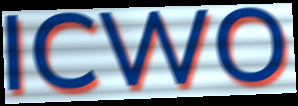
ICWO